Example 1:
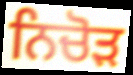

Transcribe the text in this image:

ਨਿਚੋੜ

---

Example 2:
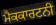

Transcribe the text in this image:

ਮੈਕਕਾਰਟਨੀ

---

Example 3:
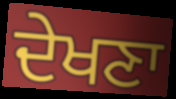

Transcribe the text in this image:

ਦੇਖਣਾ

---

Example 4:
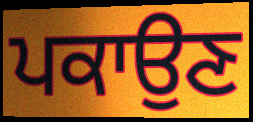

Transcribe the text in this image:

ਪਕਾਉਣ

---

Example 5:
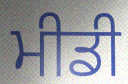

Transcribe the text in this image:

ਮੀਡੀ